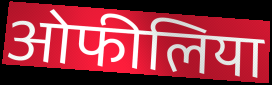
ओफीलिया